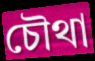
চৌথা